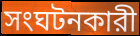
সংঘটনকারী